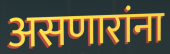
असणारांना